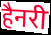
हैनरी